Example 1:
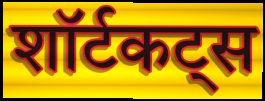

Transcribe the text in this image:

शॉर्टकट्स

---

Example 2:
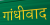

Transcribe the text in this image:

गांधीवाद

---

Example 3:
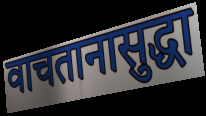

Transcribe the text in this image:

वाचतानासुद्धा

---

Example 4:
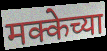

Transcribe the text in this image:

मक्केच्या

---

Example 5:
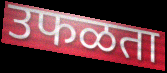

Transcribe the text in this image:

उफळता